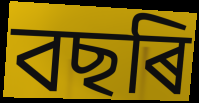
বছৰি